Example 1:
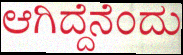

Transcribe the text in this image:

ಆಗಿದ್ದೆನೆಂದು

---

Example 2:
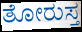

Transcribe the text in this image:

ತೋರುಸ್ತ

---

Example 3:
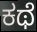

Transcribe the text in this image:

ಕಥೆ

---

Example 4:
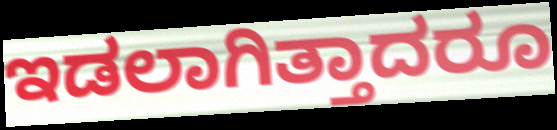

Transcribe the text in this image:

ಇಡಲಾಗಿತ್ತಾದರೂ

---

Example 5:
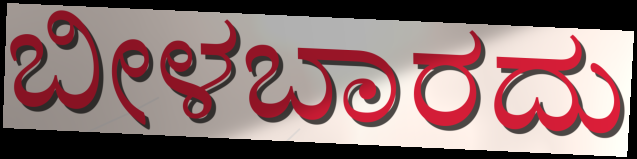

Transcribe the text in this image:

ಬೀಳಬಾರದು